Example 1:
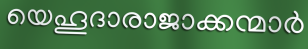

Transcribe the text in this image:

യെഹൂദാരാജാക്കന്മാർ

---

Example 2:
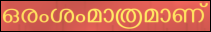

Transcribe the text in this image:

ഒരംശംമാത്രമാണ്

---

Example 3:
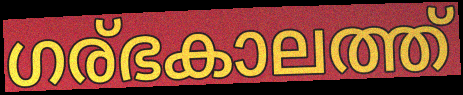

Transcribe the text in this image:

ഗര്ഭകാലത്ത്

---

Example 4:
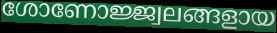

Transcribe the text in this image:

ശോണോജ്ജ്വലങ്ങളായ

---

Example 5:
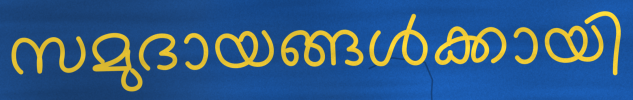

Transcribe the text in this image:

സമുദായങ്ങൾക്കായി